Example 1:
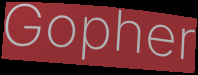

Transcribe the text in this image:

Gopher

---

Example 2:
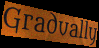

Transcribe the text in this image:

Gradually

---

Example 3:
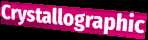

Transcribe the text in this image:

Crystallographic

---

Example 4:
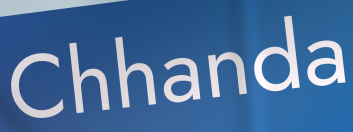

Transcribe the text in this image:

Chhanda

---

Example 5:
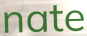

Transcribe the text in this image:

nate